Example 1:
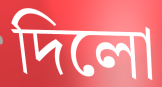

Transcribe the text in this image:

দিলো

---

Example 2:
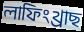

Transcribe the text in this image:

লাফিংথ্ৰাছ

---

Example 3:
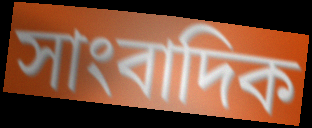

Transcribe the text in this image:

সাংবাদিক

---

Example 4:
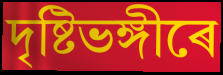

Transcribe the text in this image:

দৃষ্টিভঙ্গীৰে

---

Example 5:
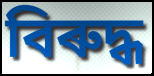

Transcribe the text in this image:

বিৰুদ্ধ